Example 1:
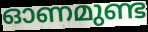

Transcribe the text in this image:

ഓണമുണ്ട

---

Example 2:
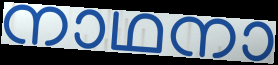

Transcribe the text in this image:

നാഥനാ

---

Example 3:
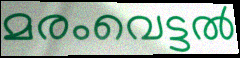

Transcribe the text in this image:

മരംവെട്ടൽ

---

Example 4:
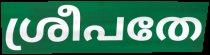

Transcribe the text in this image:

ശ്രീപതേ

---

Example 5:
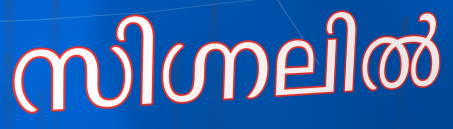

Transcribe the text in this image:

സിഗ്നലിൽ